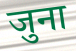
जुना